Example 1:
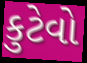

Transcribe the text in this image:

કુટેવો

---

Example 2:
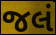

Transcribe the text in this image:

જલં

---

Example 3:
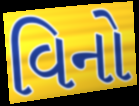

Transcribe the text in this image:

વિનો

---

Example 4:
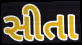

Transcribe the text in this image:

સીતા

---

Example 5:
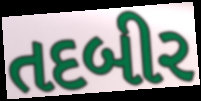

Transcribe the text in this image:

તદબીર